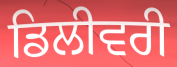
ਡਿਲੀਵਰੀ